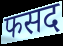
फसद